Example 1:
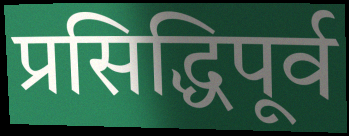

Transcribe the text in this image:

प्रसिद्धिपूर्व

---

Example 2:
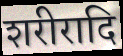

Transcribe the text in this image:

शरीरादि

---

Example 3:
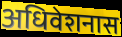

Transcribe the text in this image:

अधिवेशनास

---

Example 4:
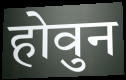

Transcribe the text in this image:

होवुन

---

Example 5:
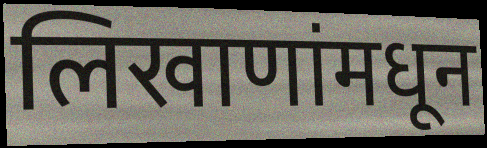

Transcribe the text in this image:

लिखाणांमधून